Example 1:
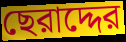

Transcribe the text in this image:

ছেরাদ্দের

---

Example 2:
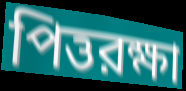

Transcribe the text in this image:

পিত্তরক্ষা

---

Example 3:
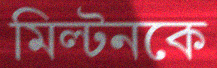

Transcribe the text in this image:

মিল্টনকে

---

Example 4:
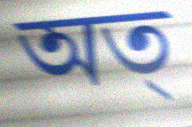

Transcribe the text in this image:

অত্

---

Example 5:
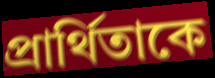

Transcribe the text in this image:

প্রার্থিতাকে